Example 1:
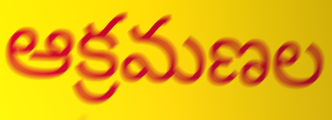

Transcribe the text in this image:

ఆక్రమణల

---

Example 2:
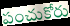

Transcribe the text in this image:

పంచుకోరు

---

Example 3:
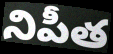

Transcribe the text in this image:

నిపీత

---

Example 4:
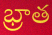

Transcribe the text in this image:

భ్రాత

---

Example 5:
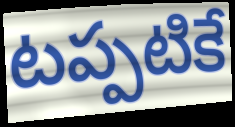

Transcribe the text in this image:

టప్పటికే